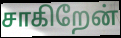
சாகிறேன்